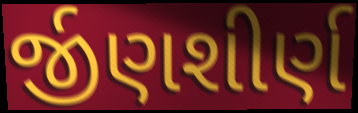
ર્જીણશીર્ણ